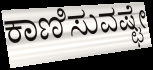
ಕಾಣಿಸುವಷ್ಟೇ